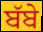
ਬੱਬੇ